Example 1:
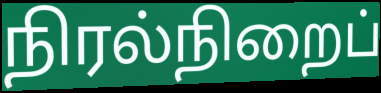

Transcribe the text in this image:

நிரல்நிறைப்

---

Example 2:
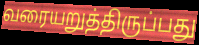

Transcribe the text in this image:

வரையறுத்திருப்பது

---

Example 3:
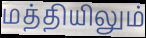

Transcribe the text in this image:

மத்தியிலும்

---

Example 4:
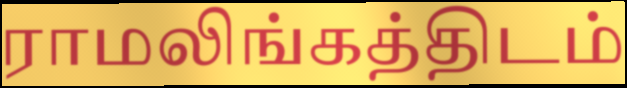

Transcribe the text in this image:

ராமலிங்கத்திடம்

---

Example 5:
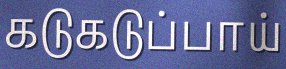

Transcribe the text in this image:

கடுகடுப்பாய்